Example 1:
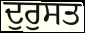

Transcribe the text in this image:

ਦੁਰੁਸਤ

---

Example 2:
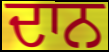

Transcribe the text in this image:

ਦਾਨ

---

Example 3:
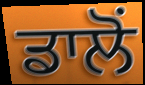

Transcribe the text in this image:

ਡਾਲੋਂ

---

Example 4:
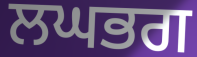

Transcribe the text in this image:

ਲਘਭਗ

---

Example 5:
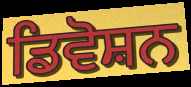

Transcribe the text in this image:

ਡਿਵੋਸ਼ਨ